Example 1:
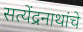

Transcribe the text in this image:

सत्येंद्रनाथांचे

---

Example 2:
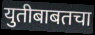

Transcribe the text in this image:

युतीबाबतचा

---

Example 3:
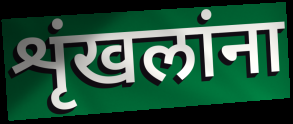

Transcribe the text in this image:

शृंखलांना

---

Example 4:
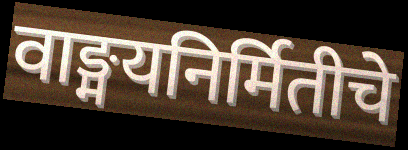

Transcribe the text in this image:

वाङ्मयनिर्मितीचे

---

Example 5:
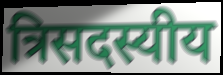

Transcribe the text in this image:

त्रिसदस्यीय